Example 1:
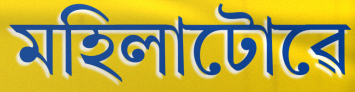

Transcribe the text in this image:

মহিলাটোৱে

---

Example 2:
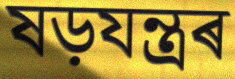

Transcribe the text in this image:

ষড়যন্ত্ৰৰ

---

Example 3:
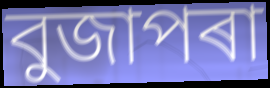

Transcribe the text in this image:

বুজাপৰা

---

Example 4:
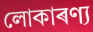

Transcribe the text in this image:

লোকাৰণ্য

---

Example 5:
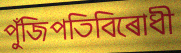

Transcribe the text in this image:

পুঁজিপতিবিৰোধী